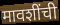
मावशींची